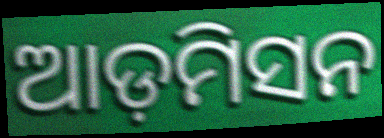
ଆଡ଼ମିସନ